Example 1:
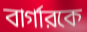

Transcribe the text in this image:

বার্গারকে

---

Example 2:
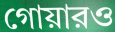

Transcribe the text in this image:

গোয়ারও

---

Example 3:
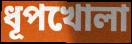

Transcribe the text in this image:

ধূপখোলা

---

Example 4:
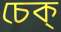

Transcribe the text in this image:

চেক্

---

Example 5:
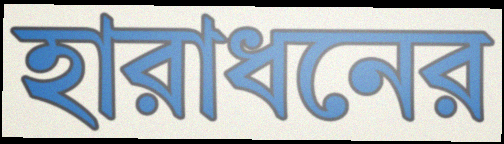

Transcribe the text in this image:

হারাধনের